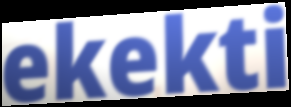
ekekti